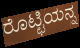
ರೊಟ್ಟಿಯನ್ನ